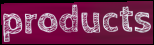
products